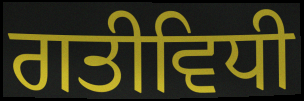
ਗਤੀਵਿਧੀ